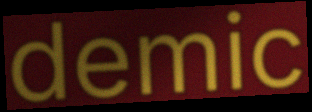
demic